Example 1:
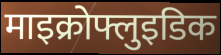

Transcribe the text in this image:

माइक्रोफ्लुइडिक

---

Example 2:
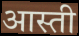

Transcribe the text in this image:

आस्ती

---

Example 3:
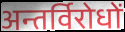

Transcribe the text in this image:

अन्तर्विरोधों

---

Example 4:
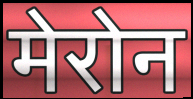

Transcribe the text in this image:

मेरोन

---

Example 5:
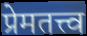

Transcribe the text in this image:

प्रेमतत्त्व